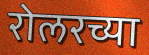
रोलरच्या